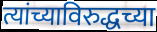
त्यांच्याविरुद्धच्या